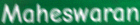
Maheswaran